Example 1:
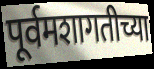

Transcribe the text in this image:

पूर्वमशागतीच्या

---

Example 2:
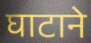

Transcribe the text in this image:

घाटाने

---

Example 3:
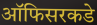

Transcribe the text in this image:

ऑफिसरकडे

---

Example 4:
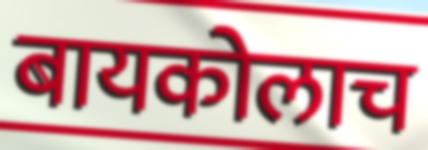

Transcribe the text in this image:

बायकोलाच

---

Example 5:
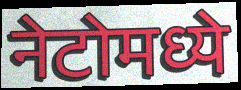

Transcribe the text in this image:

नेटोमध्ये